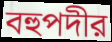
বহুপদীর